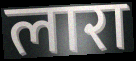
लारा